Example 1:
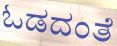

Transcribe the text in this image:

ಓಡದಂತೆ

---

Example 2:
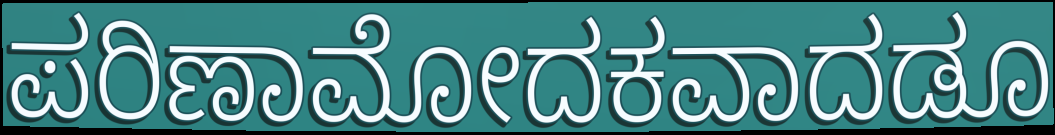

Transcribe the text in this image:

ಪರಿಣಾಮೋದಕವಾದಡೂ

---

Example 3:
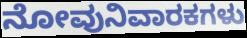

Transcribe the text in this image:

ನೋವುನಿವಾರಕಗಳು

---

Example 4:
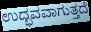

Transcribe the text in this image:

ಉದ್ಭವವಾಗುತ್ತದೆ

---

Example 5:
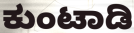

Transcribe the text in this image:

ಕುಂಟಾಡಿ